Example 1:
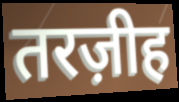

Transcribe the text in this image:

तरज़ीह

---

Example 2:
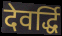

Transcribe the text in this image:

देवर्द्धि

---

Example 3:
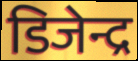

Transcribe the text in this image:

डिजेन्द्र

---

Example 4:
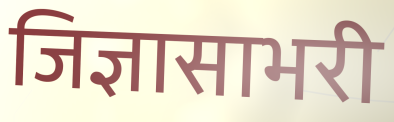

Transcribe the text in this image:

जिज्ञासाभरी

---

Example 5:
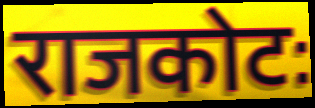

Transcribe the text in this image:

राजकोटः